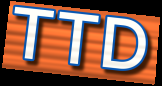
TTD